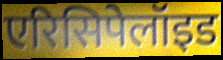
एरिसिपेलॉइड